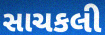
સાચકલી